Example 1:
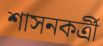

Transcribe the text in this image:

শাসনকর্ত্রী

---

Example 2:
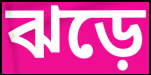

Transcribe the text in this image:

ঝড়ে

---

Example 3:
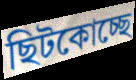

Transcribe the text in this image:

ছিটকোচ্ছে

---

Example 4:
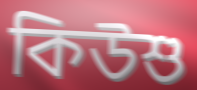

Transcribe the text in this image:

কিউশু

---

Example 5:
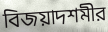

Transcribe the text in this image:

বিজয়াদশমীর